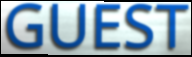
GUEST